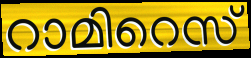
റാമിറെസ്